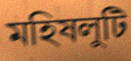
মহিষলুটি